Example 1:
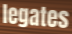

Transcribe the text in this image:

legates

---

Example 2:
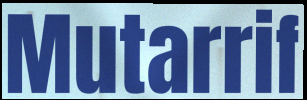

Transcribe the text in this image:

Mutarrif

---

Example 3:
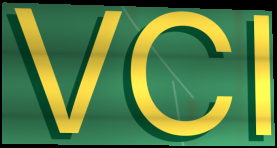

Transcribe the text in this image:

VCI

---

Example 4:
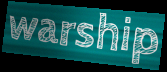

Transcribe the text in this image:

warship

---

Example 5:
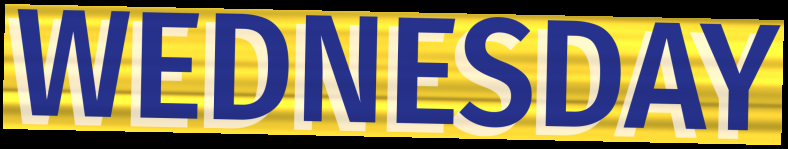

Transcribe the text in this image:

WEDNESDAY